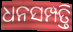
ଧନସମ୍ପତ୍ତି